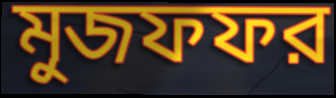
মুজফফর